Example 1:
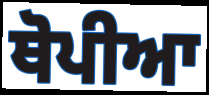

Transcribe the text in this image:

ਥੋਪੀਆ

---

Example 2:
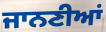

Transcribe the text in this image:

ਜਾਨਣੀਆਂ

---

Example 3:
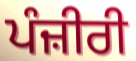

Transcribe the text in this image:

ਪੰਜ਼ੀਰੀ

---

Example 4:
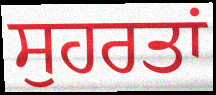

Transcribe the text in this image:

ਸੁਹਰਤਾਂ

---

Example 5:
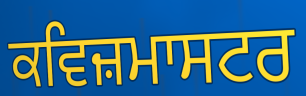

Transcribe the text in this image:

ਕਵਿਜ਼ਮਾਸਟਰ